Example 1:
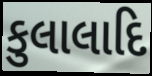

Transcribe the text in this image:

કુલાલાદિ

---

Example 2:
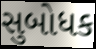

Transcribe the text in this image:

સુબોધક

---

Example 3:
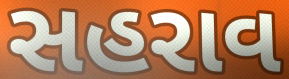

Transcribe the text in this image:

સહરાવ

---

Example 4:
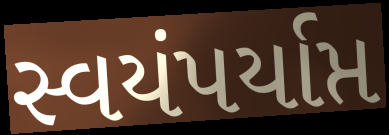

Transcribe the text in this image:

સ્વયંપર્યાપ્ત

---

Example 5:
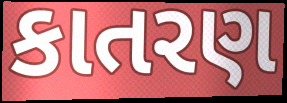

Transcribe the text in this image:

કાતરણ